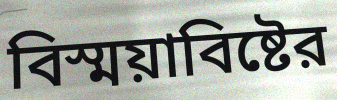
বিস্ময়াবিষ্টের